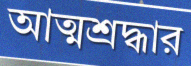
আত্মশ্রদ্ধার